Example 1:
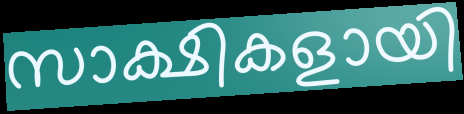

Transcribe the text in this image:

സാക്ഷികളായി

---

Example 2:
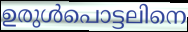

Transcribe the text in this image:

ഉരുൾപൊട്ടലിനെ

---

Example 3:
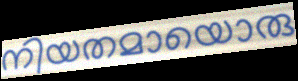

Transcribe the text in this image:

നിയതമായൊരു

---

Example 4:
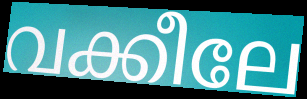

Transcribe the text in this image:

വക്കീലേ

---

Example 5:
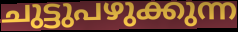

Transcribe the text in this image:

ചുട്ടുപഴുക്കുന്ന